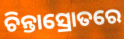
ଚିନ୍ତାସ୍ରୋତରେ